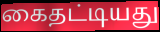
கைதட்டியது